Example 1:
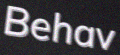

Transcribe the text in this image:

Behav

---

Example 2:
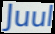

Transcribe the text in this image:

Juul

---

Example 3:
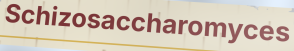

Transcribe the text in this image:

Schizosaccharomyces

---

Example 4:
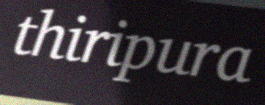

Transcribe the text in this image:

thiripura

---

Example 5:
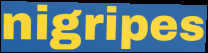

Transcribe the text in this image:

nigripes